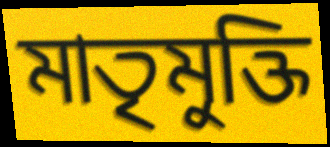
মাতৃমুক্তি